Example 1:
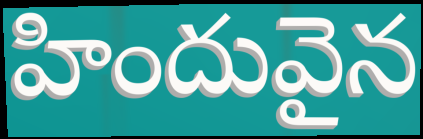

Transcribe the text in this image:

హిందువైన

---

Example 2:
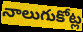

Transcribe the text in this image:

నాలుగుకోట్ల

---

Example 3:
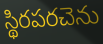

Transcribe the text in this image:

స్థిరపరచెను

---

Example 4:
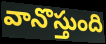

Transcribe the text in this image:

వానొస్తుంది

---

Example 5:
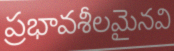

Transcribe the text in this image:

ప్రభావశీలమైనవి